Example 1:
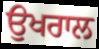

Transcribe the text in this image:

ਉਖਰਾਲ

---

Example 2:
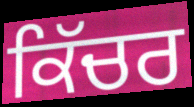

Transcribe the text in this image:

ਕਿੱਚਰ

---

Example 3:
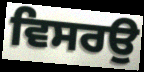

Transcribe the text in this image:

ਵਿਸਰਉ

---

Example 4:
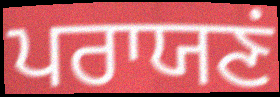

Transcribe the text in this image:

ਪਰਾਯਣਂ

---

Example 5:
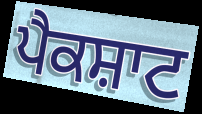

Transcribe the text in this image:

ਪੈਕਸ਼ਾਟ